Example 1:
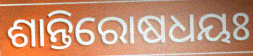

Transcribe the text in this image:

ଶାନ୍ତିରୋଷଧୟଃ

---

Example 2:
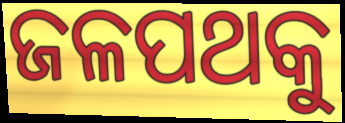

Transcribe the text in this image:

ଜଳପଥକୁ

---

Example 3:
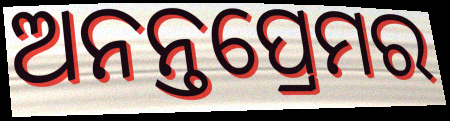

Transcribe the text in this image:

ଅନନ୍ତପ୍ରେମର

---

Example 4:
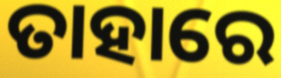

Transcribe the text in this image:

ତାହାରେ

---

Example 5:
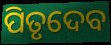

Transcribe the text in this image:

ପିତୃଦେବ